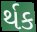
ર્થક